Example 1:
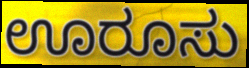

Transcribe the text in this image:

ಊರೂಸು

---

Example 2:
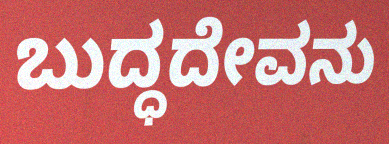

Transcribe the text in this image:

ಬುದ್ಧದೇವನು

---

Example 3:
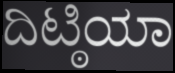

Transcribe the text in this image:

ದಿಟ್ಠಿಯಾ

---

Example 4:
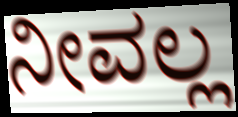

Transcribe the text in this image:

ನೀವಲ್ಲ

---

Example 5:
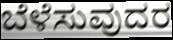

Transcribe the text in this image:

ಬೆಳೆಸುವುದರ